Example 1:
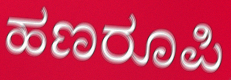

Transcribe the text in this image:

ಹಣರೂಪಿ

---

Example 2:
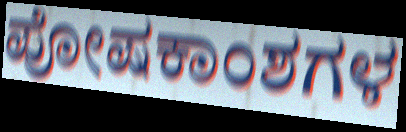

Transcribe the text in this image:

ಪೋಷಕಾಂಶಗಳ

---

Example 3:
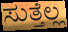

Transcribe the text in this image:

ಸುತ್ತೆಲ್ಲ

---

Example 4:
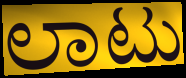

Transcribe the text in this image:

ಲಾಟು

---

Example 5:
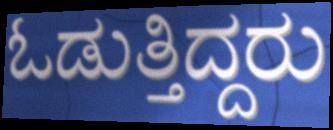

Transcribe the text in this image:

ಓಡುತ್ತಿದ್ದರು